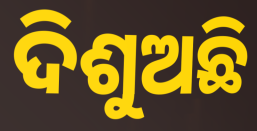
ଦିଶୁଅଛି